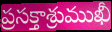
ప్రసక్తాశ్రుముఖీ